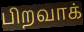
பிறவாக்